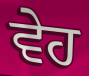
ਵੇਹ